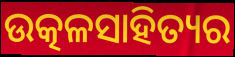
ଉତ୍କଳସାହିତ୍ୟର